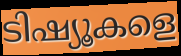
ടിഷ്യൂകളെ